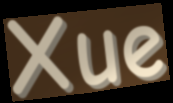
Xue